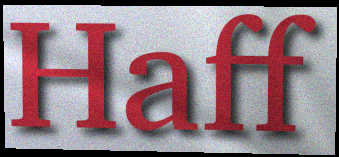
Haff